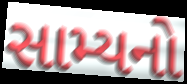
સામ્યનો